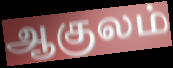
ஆகுலம்